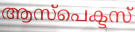
ആസ്പെക്ടസ്